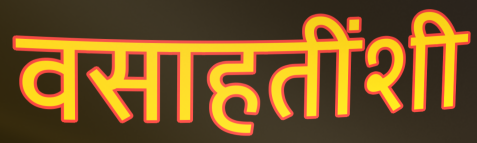
वसाहतींशी